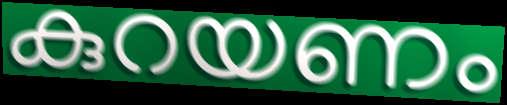
കുറയണം